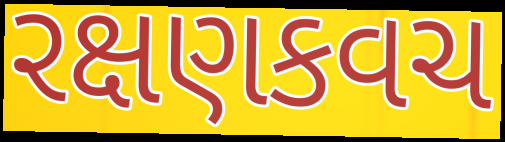
રક્ષણકવચ